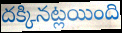
దక్కినట్లయింది